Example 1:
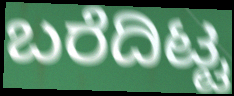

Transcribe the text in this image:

ಬರೆದಿಟ್ಟ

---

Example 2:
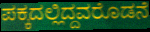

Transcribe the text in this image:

ಪಕ್ಕದಲ್ಲಿದ್ದವರೊಡನೆ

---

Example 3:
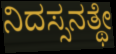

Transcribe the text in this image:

ನಿದಸ್ಸನತ್ಥೇ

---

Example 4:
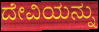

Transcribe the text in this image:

ದೇವಿಯನ್ನು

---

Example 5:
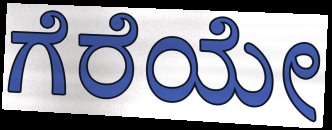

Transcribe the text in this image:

ಗೆರೆಯೇ